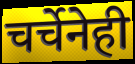
चर्चेनेही